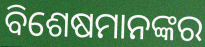
ବିଶେଷମାନଙ୍କର